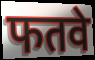
फतवे